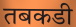
तबकडी